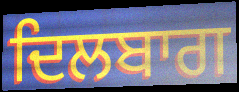
ਦਿਲਬਾਗ